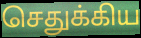
செதுக்கிய